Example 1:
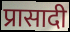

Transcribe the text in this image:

प्रासादी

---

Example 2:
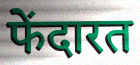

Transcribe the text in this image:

फेंदारत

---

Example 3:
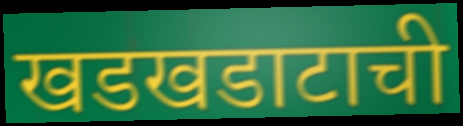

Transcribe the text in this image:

खडखडाटाची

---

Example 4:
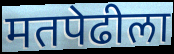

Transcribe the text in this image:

मतपेढीला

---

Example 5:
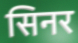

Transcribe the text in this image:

सिनर